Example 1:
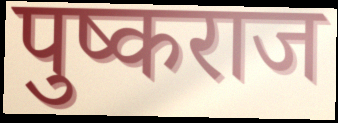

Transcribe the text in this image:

पुष्कराज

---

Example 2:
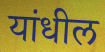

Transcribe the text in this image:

यांधील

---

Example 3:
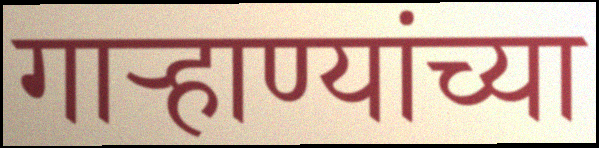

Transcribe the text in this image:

गाऱ्हाण्यांच्या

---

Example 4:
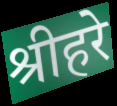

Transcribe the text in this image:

श्रीहरे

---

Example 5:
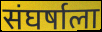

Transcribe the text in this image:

संघर्षाला